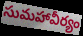
సుమహావీర్యం